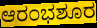
ಆರಂಭಶೂರ